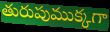
తురుపుముక్కగా